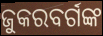
ଜୁକରବର୍ଗଙ୍କ